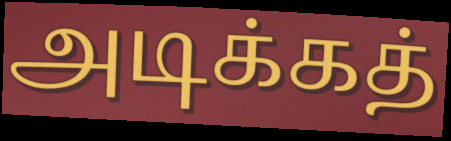
அடிக்கத்